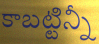
కాబట్టిన్నీ